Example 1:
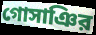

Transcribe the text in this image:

গোসাঞির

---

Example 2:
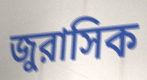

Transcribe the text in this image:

জুরাসিক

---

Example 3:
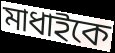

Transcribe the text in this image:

মাধাইকে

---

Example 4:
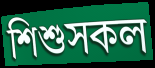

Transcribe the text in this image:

শিশুসকল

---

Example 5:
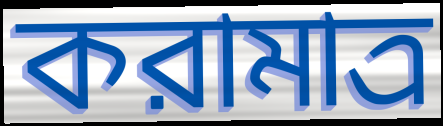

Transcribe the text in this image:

করামাত্র